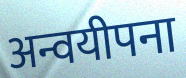
अन्वयीपना